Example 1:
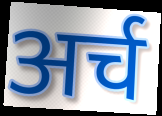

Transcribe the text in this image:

अर्च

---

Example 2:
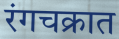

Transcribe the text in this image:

रंगचक्रात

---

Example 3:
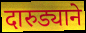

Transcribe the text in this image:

दारुड्याने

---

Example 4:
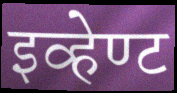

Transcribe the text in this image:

इव्हेण्ट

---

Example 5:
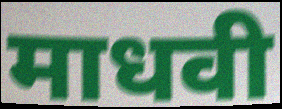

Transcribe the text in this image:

माधवी